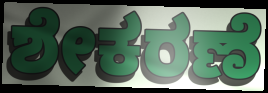
ಶೇಕರಣೆ